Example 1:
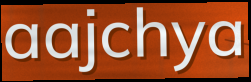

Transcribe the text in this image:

aajchya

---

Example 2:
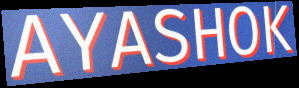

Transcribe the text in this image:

AYASHOK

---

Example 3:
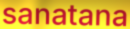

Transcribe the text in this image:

sanatana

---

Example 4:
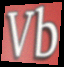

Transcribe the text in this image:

Vb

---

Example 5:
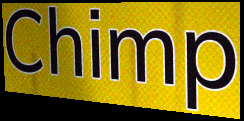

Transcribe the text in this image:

Chimp